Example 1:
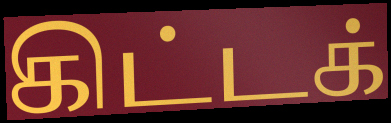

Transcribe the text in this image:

கிட்டக்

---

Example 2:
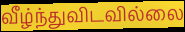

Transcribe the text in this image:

வீழ்ந்துவிடவில்லை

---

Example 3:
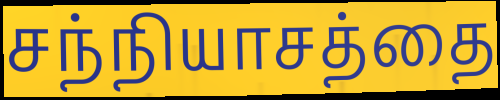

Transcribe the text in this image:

சந்நியாசத்தை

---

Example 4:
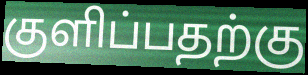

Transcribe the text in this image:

குளிப்பதற்கு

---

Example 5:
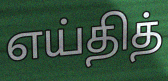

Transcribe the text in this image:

எய்தித்